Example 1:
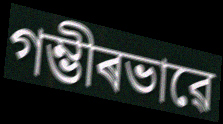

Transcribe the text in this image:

গম্ভীৰভাৱে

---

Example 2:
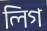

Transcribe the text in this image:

লিগ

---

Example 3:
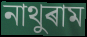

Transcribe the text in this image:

নাথুৰাম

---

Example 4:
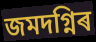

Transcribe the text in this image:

জমদগ্নিৰ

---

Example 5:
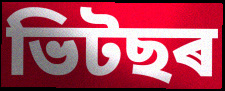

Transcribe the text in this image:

ভিটছৰ